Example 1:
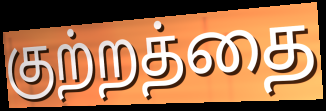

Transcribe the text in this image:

குற்றத்தை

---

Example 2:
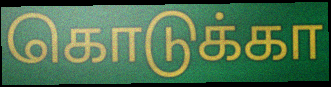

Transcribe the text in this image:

கொடுக்கா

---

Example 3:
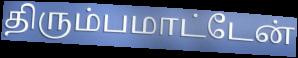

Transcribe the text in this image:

திரும்பமாட்டேன்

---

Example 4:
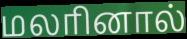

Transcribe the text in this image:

மலரினால்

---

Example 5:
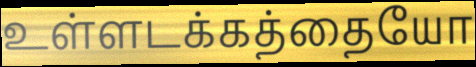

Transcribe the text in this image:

உள்ளடக்கத்தையோ